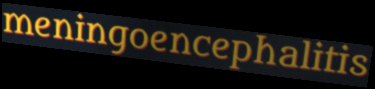
meningoencephalitis